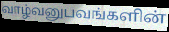
வாழ்வனுபவங்களின்